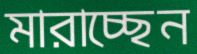
মারাচ্ছেন